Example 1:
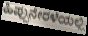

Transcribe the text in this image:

ಹಿಪ್ಪುನೇರಳೆಯಲ್ಲಿ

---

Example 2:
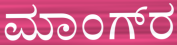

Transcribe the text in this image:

ಮಾಂಗ್‌ರ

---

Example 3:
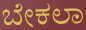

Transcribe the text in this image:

ಬೇಕಲಾ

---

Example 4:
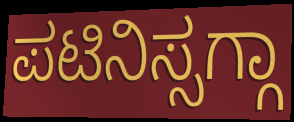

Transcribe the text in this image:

ಪಟಿನಿಸ್ಸಗ್ಗಾ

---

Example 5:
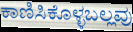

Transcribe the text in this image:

ಕಾಣಿಸಿಕೊಳ್ಳಬಲ್ಲವು